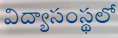
విద్యాసంస్థలో